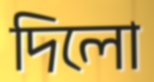
দিলো